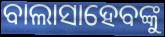
ବାଲାସାହେବଙ୍କୁ